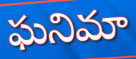
ఘనిమా